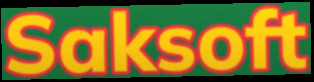
Saksoft